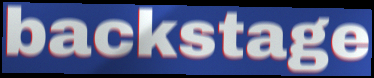
backstage